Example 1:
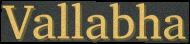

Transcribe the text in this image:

Vallabha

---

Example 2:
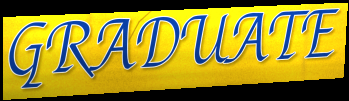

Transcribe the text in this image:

GRADUATE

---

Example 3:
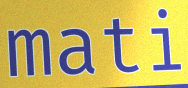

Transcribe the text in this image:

mati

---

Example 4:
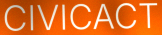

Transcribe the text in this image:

CIVICACT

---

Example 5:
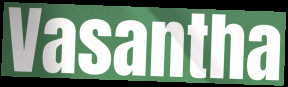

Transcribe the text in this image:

Vasantha